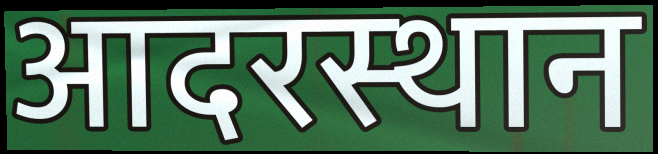
आदरस्थान